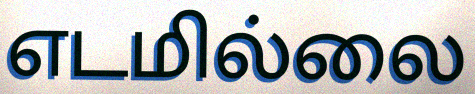
எடமில்லை